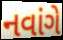
નવાંગે